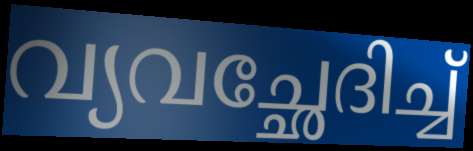
വ്യവച്ഛേദിച്ച്